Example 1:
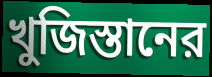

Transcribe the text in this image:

খুজিস্তানের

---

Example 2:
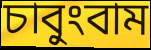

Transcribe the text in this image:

চাবুংবাম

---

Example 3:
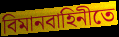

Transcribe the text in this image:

বিমানবাহিনীতে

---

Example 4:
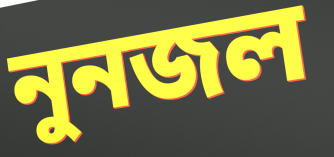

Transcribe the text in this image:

নুনজল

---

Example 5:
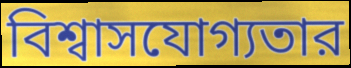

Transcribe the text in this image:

বিশ্বাসযোগ্যতার